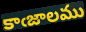
కాఁజాలము